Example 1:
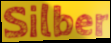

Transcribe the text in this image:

Silber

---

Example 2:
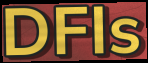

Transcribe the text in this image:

DFIs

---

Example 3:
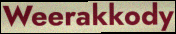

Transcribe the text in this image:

Weerakkody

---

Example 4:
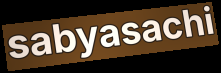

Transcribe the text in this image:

sabyasachi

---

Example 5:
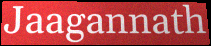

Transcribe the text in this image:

Jaagannath